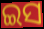
ଇସ